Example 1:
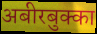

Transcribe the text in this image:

अबीरबुक्का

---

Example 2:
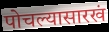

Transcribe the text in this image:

पोचल्यासारखं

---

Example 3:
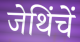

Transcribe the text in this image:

जेथिंचें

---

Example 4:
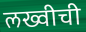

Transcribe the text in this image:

लख्वीची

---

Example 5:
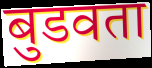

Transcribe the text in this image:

बुडवता